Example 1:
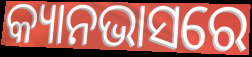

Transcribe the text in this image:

କ୍ୟାନଭାସରେ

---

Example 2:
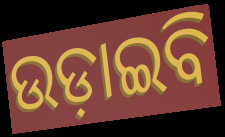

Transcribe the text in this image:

ଉଡ଼ାଇବି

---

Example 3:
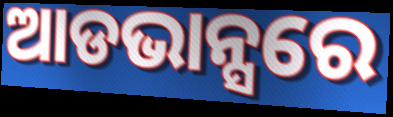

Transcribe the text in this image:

ଆଡଭାନ୍ସରେ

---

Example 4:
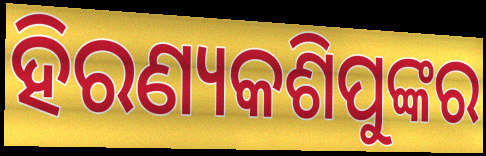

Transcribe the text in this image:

ହିରଣ୍ୟକଶିପୁଙ୍କର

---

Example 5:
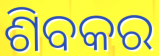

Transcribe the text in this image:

ଶିବକର